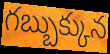
గబ్బుక్కున